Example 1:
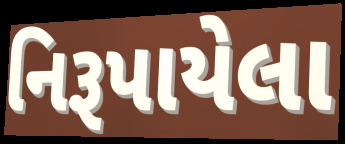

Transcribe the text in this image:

નિરૂપાયેલા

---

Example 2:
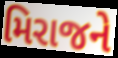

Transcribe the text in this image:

મિરાજને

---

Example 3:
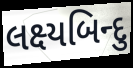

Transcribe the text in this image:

લક્ષ્યબિન્દુ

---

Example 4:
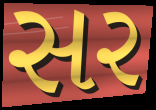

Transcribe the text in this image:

સર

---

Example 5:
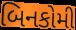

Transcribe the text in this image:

બિનકોમી